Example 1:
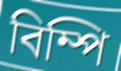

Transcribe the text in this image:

বিম্পি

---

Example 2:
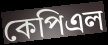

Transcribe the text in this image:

কেপিএল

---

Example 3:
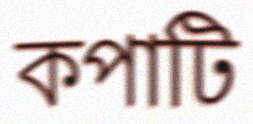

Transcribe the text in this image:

কপাটি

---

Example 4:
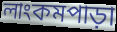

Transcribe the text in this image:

লাংকমপাড়া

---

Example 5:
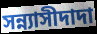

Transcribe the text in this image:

সন্ন্যাসীদাদা